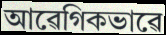
আৱেগিকভাৱে